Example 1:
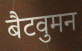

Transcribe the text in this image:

बैटवुमन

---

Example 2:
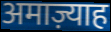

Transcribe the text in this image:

अमाज़्याह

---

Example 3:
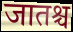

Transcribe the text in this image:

जातश्च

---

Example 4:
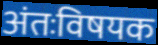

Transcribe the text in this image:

अंतःविषयक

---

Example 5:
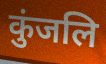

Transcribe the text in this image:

कुंजलि